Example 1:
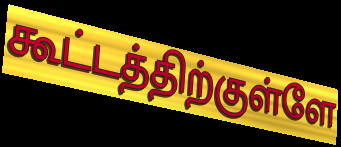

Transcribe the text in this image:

கூட்டத்திற்குள்ளே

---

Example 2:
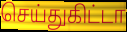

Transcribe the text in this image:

செய்துகிட்டா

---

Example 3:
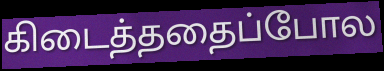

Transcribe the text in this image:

கிடைத்ததைப்போல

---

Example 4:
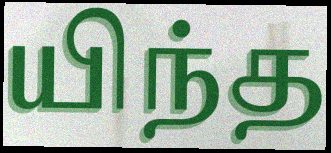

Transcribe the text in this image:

யிந்த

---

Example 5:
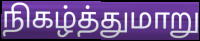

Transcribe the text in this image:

நிகழ்த்துமாறு